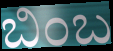
ಬಿಂಬ